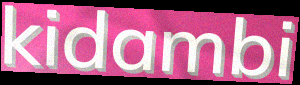
kidambi